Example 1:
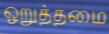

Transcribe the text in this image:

ஒறுத்தமை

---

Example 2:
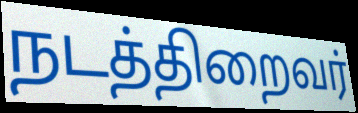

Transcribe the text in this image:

நடத்திறைவர்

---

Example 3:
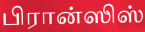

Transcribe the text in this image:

பிரான்ஸிஸ்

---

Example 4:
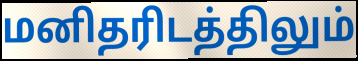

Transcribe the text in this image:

மனிதரிடத்திலும்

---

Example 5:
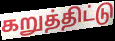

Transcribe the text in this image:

கறுத்திட்டு